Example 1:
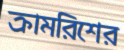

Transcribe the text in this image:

ক্রামরিশের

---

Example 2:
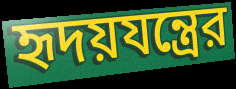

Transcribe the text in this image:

হৃদয়যন্ত্রের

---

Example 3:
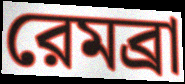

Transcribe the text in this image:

রেমব্রা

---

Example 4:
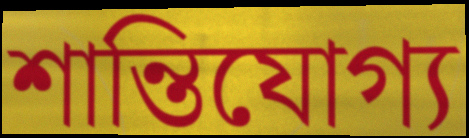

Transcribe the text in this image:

শান্তিযোগ্য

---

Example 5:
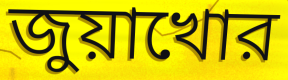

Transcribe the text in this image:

জুয়াখোর